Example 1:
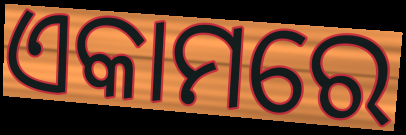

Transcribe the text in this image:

ଏକାମରେ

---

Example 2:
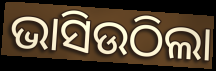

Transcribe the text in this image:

ଭାସିଉଠିଲା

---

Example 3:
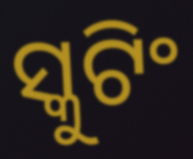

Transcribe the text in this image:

ସ୍କୁଟିଂ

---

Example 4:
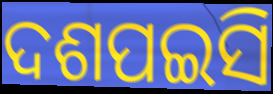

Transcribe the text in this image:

ଦଶପଇସି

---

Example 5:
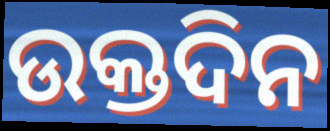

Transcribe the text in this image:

ଉକ୍ତଦିନ